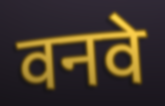
वनवे